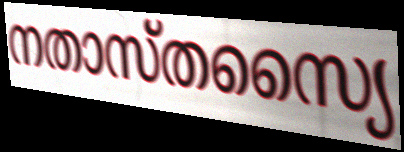
നതാസ്തസ്യൈ